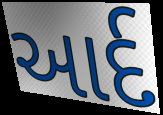
આર્દ